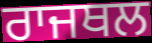
ਰਾਜਥਲ